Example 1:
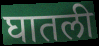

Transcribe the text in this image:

घातली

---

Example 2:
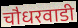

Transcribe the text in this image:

चौधरवाडी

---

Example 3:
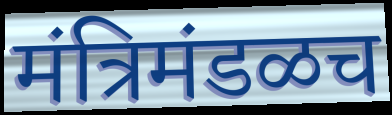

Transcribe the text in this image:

मंत्रिमंडळच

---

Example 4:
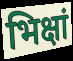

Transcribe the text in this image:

भिक्षां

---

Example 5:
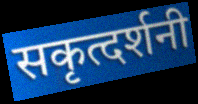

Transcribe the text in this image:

सकृत्दर्शनी